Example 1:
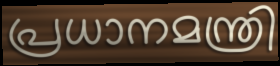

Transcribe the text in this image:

പ്രധാനമന്ത്രി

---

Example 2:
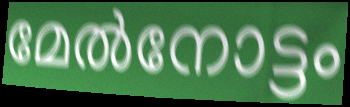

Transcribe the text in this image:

മേൽനോട്ടം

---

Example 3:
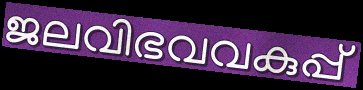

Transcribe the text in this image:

ജലവിഭവവകുപ്പ്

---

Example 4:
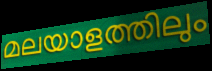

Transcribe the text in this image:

മലയാളത്തിലും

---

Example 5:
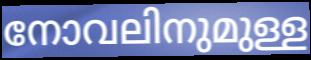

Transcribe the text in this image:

നോവലിനുമുള്ള